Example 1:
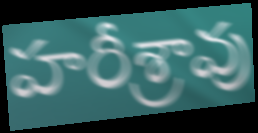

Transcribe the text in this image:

హరీశ్రావు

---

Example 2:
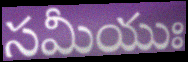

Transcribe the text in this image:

సమీయుః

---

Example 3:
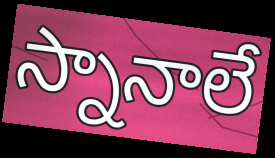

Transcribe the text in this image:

స్నానాలే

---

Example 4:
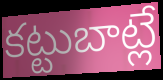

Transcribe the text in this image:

కట్టుబాట్లే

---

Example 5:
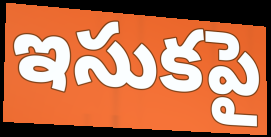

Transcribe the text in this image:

ఇసుకపై